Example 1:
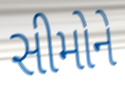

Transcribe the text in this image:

સીમોને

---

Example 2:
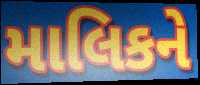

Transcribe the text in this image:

માલિકને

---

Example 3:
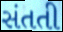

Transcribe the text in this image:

સંતતી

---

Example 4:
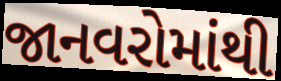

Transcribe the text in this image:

જાનવરોમાંથી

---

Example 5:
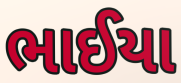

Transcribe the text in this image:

ભાઈયા